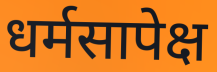
धर्मसापेक्ष